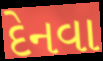
દેનવા